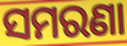
ସମରଣା